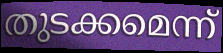
തുടക്കമെന്ന്